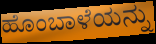
ಹೊಂಬಾಳೆಯನ್ನು